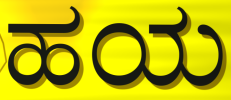
ಹಯ